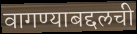
वागण्याबद्दलची